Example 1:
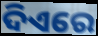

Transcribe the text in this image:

ଦିଏରେ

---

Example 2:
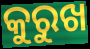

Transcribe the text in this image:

କୁରୁଖ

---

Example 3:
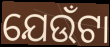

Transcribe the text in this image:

ଯେଉଁଟା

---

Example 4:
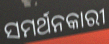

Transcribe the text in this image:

ସମର୍ଥନକାରୀ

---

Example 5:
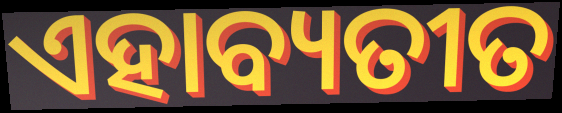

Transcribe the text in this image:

ଏହାବ୍ୟତୀତ